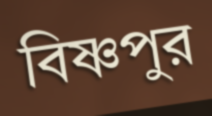
বিষ্ণপুর